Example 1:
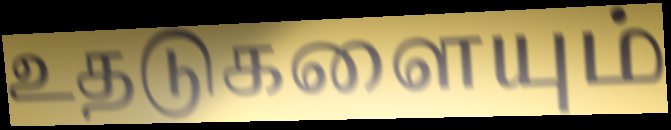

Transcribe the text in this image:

உதடுகளையும்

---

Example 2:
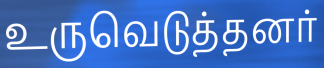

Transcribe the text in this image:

உருவெடுத்தனர்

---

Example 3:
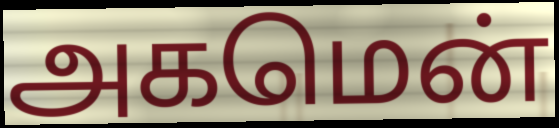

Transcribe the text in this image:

அகமென்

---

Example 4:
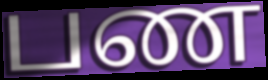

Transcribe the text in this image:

பண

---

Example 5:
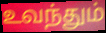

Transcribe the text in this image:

உவந்தும்